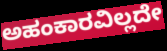
ಅಹಂಕಾರವಿಲ್ಲದೇ